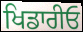
ਖਿਡਾਰੀਓ